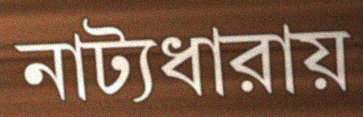
নাট্যধারায়